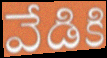
వేడికి